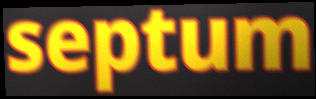
septum